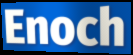
Enoch